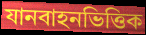
যানবাহনভিত্তিক